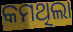
କମଥିଲା